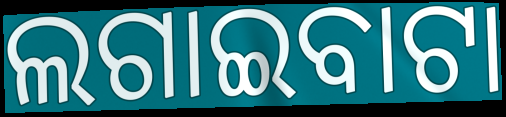
ଲଗାଇବାଟା